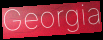
Georgia